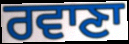
ਰਵਾਣਾ